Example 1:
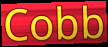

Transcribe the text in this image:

Cobb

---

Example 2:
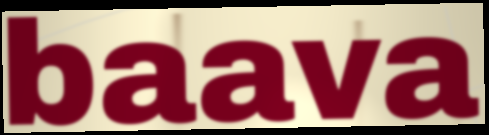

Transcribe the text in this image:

baava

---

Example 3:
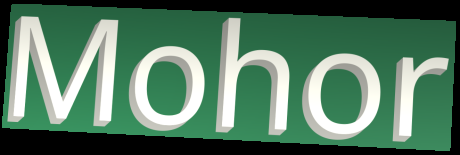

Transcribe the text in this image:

Mohor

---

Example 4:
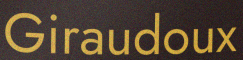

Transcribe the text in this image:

Giraudoux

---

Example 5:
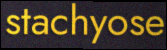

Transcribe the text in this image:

stachyose